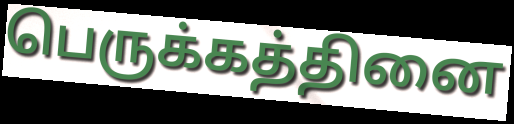
பெருக்கத்தினை